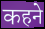
कहने